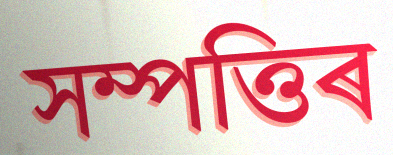
সম্পত্তিৰ